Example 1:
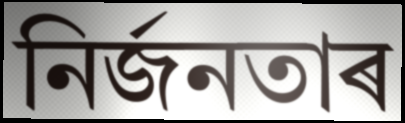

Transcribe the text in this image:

নিৰ্জনতাৰ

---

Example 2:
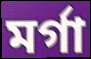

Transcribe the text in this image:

মৰ্গা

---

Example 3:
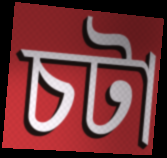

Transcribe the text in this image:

চটা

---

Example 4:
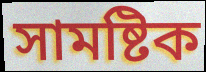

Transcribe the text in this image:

সামষ্টিক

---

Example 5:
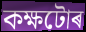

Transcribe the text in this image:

কক্ষটোৰ